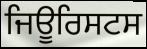
ਜਿਊਰਿਸਟਸ